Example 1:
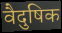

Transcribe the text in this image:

वैदुषिक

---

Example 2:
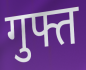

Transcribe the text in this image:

गुफ्त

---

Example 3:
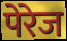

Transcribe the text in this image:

पेरेज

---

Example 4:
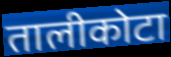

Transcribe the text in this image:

तालीकोटा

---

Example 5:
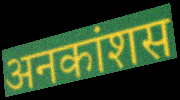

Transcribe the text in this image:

अनकांशस